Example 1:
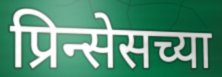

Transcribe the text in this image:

प्रिन्सेसच्या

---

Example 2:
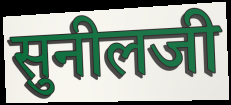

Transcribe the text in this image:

सुनीलजी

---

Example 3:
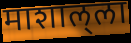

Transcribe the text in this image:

माशाल्ला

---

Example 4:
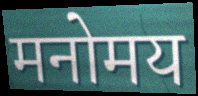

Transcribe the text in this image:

मनोमय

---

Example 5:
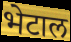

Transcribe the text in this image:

भेटाल